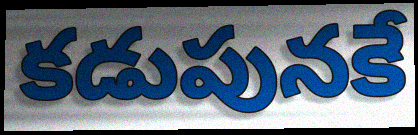
కడుపునకే